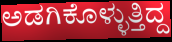
ಅಡಗಿಕೊಳ್ಳುತ್ತಿದ್ದ